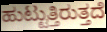
ಹುಟ್ಟುತ್ತಿರುತ್ತದೆ